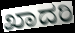
ಖಾದರಿ